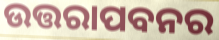
ଉତ୍ତରାପବନର